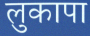
लुकापा